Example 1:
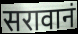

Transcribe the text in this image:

सरावानं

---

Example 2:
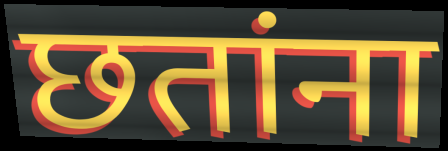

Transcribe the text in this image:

छतांना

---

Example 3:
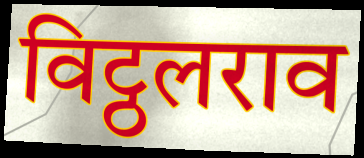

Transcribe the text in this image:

विट्ठलराव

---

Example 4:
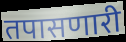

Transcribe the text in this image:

तपासणारी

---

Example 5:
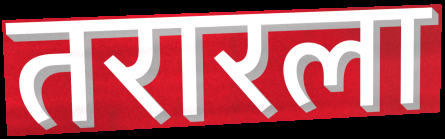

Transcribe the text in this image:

तरारला